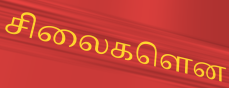
சிலைகளென